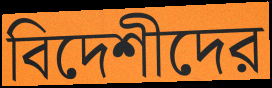
বিদেশীদের